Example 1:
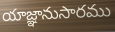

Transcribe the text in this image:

యాజ్ఞానుసారము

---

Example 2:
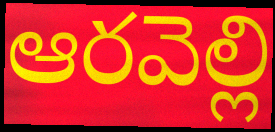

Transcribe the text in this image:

ఆరవెల్లి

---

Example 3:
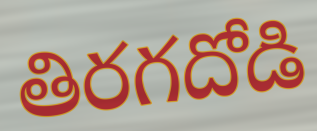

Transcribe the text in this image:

తిరగదోడి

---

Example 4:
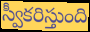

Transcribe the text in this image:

స్వీకరిస్తుంది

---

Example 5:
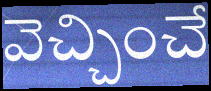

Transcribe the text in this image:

వెచ్చించే